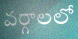
వర్గాలలో